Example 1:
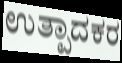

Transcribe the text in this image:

ಉತ್ಪಾದಕರ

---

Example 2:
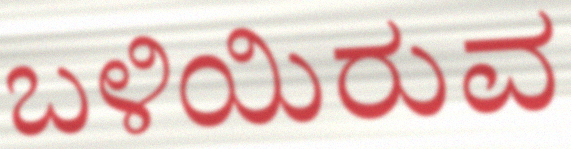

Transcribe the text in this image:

ಬಳಿಯಿರುವ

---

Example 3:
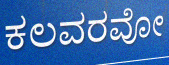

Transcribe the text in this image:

ಕಲವರವೋ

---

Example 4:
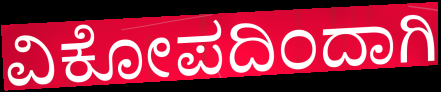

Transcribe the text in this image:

ವಿಕೋಪದಿಂದಾಗಿ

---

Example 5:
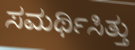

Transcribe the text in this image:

ಸಮರ್ಥಿಸಿತ್ತು